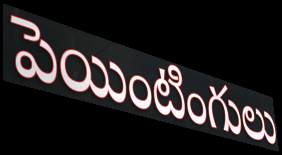
పెయింటింగులు